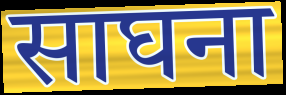
साघना